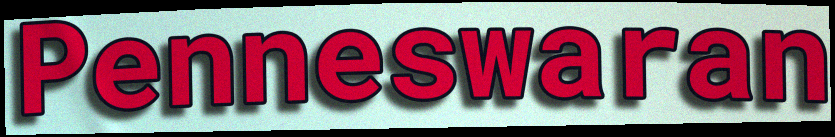
Penneswaran